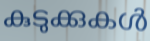
കുടുക്കുകൾ